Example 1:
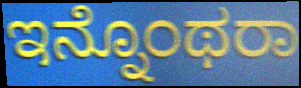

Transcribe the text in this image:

ಇನ್ನೊಂಥರಾ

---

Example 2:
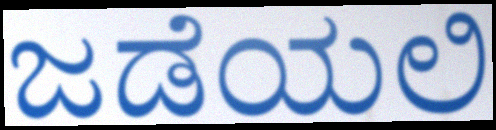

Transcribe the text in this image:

ಜಡೆಯಲಿ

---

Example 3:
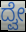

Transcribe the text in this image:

ದ್ವೇ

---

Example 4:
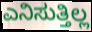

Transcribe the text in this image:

ಎನಿಸುತ್ತಿಲ್ಲ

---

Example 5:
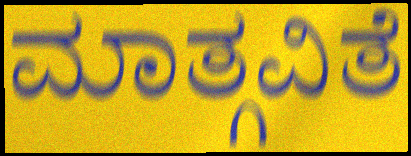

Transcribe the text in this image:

ಮಾತ್ಗವಿತೆ